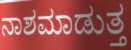
ನಾಶಮಾಡುತ್ತ